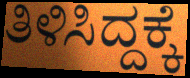
ತಿಳಿಸಿದ್ದಕ್ಕೆ